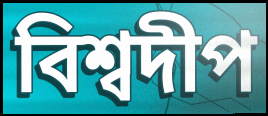
বিশ্বদীপ